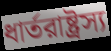
ধার্তরাষ্ট্রস্য